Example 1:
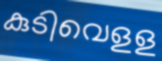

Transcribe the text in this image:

കുടിവെളള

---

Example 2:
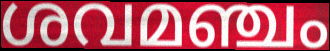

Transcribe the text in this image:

ശവമഞ്ചം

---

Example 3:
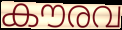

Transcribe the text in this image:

കൗരവ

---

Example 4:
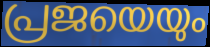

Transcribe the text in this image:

പ്രജയെയും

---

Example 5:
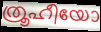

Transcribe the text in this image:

ത്രൂഹീയോ